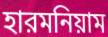
হারমনিয়াম